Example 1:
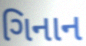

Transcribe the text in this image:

ગિનાન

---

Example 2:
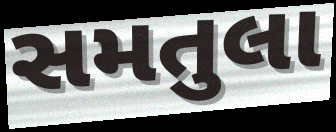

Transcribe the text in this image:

સમતુલા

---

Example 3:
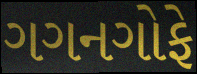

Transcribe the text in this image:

ગગનગોફે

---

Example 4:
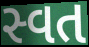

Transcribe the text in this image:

સ્વત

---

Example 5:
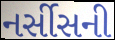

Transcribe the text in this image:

નર્સીસની